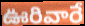
ఊరివారే